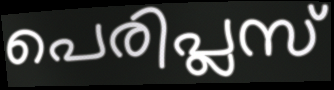
പെരിപ്ലസ്